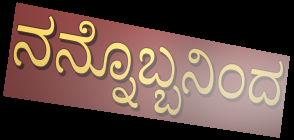
ನನ್ನೊಬ್ಬನಿಂದ